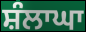
ਸ਼ੰਲਾਘਾ